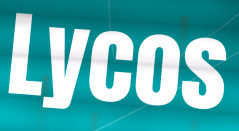
Lycos